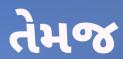
તેમજ